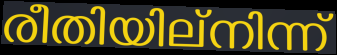
രീതിയില്നിന്ന്